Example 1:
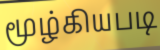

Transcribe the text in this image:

மூழ்கியபடி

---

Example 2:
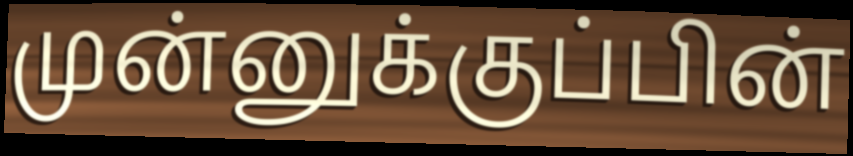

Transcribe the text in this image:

முன்னுக்குப்பின்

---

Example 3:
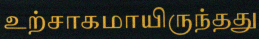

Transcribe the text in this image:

உற்சாகமாயிருந்தது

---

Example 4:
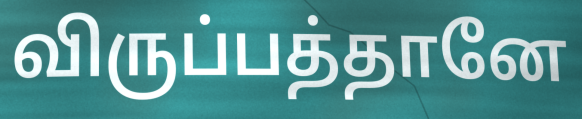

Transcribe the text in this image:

விருப்பத்தானே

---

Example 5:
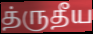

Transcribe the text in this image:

த்ருதீய